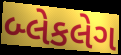
બ્લેકલેગ